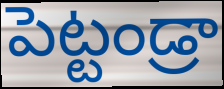
పెట్టండ్రా